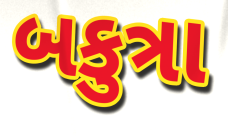
બકુત્રા